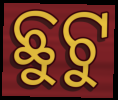
ଛୁଟୁ